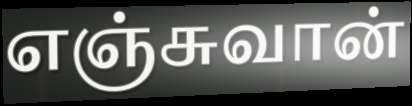
எஞ்சுவான்